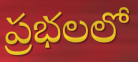
ప్రభలలో